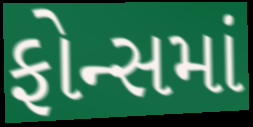
ફોન્સમાં